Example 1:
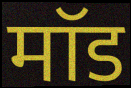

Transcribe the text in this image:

मॉड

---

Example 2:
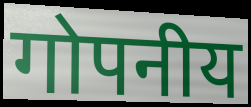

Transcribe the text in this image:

गोपनीय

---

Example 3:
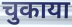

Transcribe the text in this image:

चुकाया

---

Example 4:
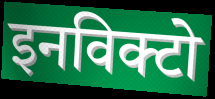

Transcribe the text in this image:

इनविक्टो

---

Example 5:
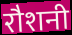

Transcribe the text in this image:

रौशनी